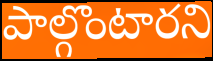
పాల్గొంటారని